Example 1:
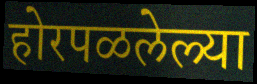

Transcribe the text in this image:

होरपळलेल्या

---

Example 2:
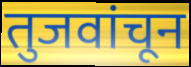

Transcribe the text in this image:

तुजवांचून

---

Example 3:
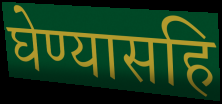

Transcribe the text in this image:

घेण्यासहि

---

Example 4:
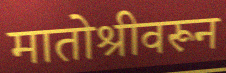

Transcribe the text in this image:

मातोश्रीवरून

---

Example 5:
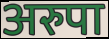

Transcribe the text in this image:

अरुपा